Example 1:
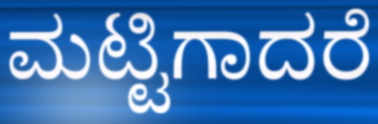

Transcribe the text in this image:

ಮಟ್ಟಿಗಾದರೆ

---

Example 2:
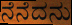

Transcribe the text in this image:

ನೆನೆದನು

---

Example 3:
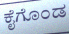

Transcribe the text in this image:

ಕೈಗೊಂಡ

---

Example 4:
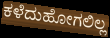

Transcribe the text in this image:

ಕಳೆದುಹೋಗಲಿಲ್ಲ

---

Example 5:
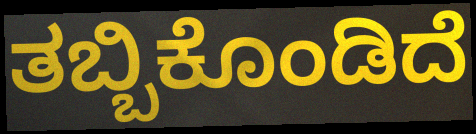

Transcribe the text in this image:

ತಬ್ಬಿಕೊಂಡಿದೆ